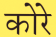
कोरे